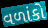
વળાંકો